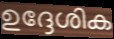
ഉദ്ദേശിക